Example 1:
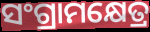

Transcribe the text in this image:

ସଂଗ୍ରାମକ୍ଷେତ୍ର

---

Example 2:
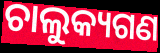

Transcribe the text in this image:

ଚାଲୁକ୍ୟଗଣ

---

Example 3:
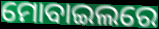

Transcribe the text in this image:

ମୋବାଇଲରେ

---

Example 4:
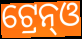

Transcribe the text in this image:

ଟ୍ରେନ୍ଓ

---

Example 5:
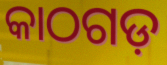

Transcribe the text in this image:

କାଠଗଡ଼